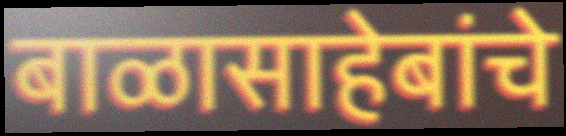
बाळासाहेबांचे